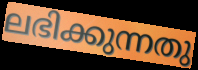
ലഭിക്കുന്നതു